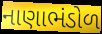
નાણાભંડોળ